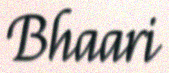
Bhaari